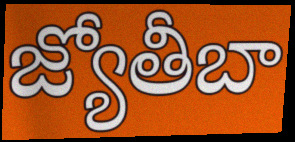
జ్యోతీబా